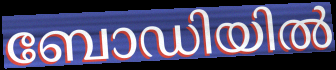
ബോഡിയിൽ